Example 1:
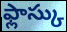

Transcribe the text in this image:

ఫ్లాస్కు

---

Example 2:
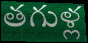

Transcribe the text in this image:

తగుళ్ల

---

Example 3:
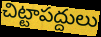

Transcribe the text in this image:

చిట్టాపద్దులు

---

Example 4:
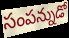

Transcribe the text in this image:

సంపన్నుడో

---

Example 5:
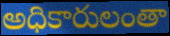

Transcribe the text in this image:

అధికారులంతా